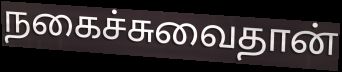
நகைச்சுவைதான்